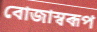
বোজাস্বৰূপ